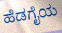
ಹೆಡಗೈಯ